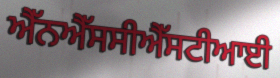
ਐੱਨਐੱਸਸੀਐੱਸਟੀਆਈ